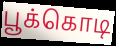
பூக்கொடி